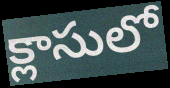
క్లాసులో